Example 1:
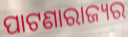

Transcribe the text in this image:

ପାଟଣାରାଜ୍ୟର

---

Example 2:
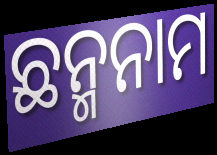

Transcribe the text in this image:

ଛନ୍ମନାମ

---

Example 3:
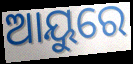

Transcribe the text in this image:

ଆୟୁରେ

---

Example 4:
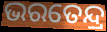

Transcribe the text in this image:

ଭରତେନ୍ଦ୍ର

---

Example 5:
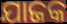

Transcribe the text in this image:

ଯାଜକ